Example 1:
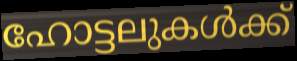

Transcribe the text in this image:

ഹോട്ടലുകൾക്ക്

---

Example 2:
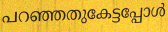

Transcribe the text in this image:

പറഞ്ഞതുകേട്ടപ്പോൾ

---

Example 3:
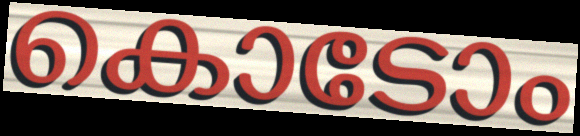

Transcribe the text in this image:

കൊടോം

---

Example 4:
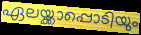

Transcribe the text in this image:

ഏലയ്ക്കാപ്പൊടിയും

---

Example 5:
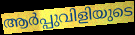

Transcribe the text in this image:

ആർപ്പുവിളിയുടെ